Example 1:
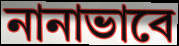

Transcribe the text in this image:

নানাভাবে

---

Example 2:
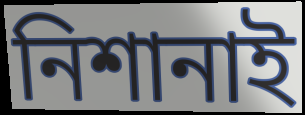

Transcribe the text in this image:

নিশানাই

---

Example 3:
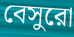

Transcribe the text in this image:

বেসুরো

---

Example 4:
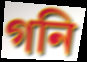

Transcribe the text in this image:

গনি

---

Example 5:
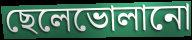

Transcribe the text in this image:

ছেলেভোলানো